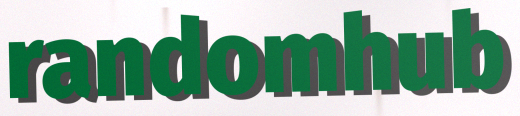
randomhub